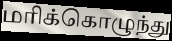
மரிக்கொழுந்து